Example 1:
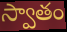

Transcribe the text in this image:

స్వాతం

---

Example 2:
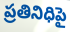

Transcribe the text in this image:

ప్రతినిధిపై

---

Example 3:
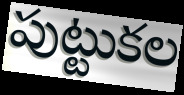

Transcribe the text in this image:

పుట్టుకల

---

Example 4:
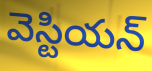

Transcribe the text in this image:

వెస్టియన్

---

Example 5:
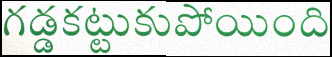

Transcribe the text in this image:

గడ్డకట్టుకుపోయింది